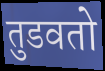
तुडवतो